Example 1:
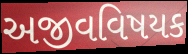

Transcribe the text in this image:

અજીવવિષયક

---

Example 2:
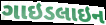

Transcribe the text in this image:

ગાઇડલાઇન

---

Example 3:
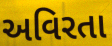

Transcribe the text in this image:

અવિરતા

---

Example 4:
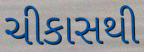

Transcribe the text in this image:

ચીકાસથી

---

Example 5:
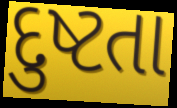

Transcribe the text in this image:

દુષ્ટતા